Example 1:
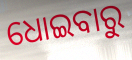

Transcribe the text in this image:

ଧୋଇବାରୁ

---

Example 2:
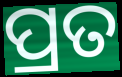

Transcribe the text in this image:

ପ୍ରତ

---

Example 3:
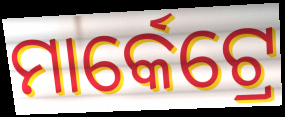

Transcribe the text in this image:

ମାର୍କେଟ୍ରେ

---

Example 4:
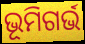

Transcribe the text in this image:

ଭୂମିଗର୍ଭ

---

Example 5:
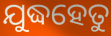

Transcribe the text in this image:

ଯୁଦ୍ଧହେତୁ